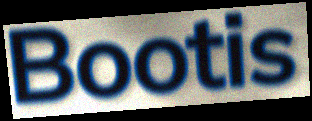
Bootis